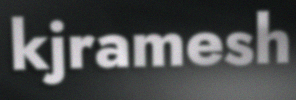
kjramesh